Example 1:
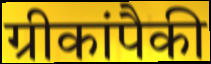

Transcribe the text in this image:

ग्रीकांपैकी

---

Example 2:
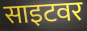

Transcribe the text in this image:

साइटवर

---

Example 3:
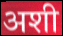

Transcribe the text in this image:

अशी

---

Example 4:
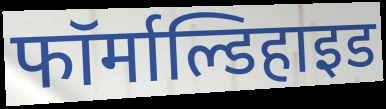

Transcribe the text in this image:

फॉर्माल्डिहाइड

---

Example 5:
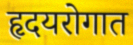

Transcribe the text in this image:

हृदयरोगात